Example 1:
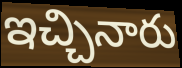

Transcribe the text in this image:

ఇచ్చినారు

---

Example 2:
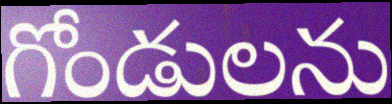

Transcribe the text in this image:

గోండులను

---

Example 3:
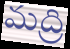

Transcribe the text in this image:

మద్రి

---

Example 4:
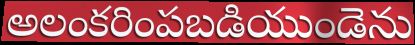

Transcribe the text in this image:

అలంకరింపబడియుండెను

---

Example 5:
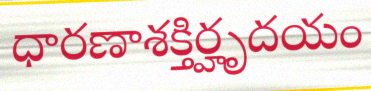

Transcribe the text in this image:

ధారణాశక్తిర్హృదయం